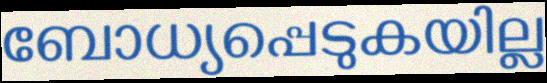
ബോധ്യപ്പെടുകയില്ല